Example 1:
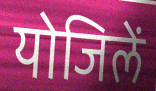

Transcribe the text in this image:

योजिलें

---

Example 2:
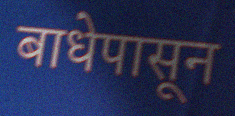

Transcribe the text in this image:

बाधेपासून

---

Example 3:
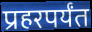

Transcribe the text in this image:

प्रहरपर्यंत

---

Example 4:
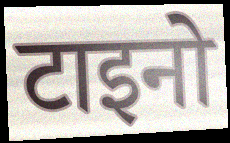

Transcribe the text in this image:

टाइनो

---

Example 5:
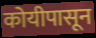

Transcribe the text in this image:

कोयीपासून